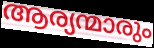
ആര്യന്മാരും